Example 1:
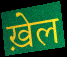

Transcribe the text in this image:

ख़ेल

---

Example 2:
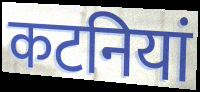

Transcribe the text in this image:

कटनियां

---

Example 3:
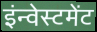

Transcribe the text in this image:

इंन्वेस्टमेंट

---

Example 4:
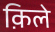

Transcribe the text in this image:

क़िले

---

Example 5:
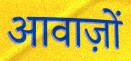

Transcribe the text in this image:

आवाज़ों